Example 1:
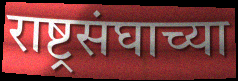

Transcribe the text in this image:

राष्ट्रसंघाच्या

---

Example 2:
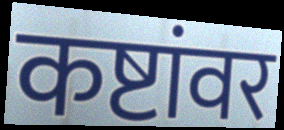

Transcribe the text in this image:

कष्टांवर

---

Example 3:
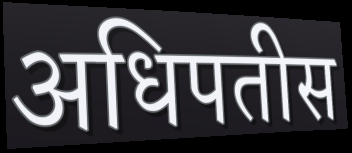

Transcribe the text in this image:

अधिपतीस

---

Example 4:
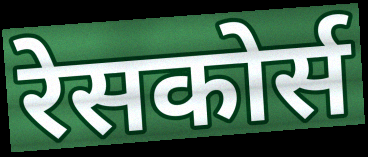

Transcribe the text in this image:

रेसकोर्स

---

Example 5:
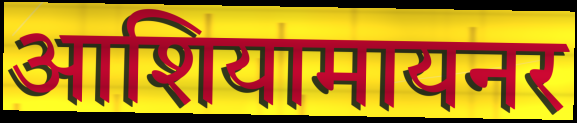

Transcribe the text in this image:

आशियामायनर